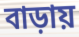
বাড়ায়